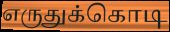
எருதுக்கொடி